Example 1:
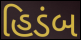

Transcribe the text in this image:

હિડંબ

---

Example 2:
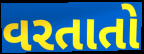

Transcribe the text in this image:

વરતાતો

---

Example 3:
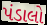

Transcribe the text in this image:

પંડાલો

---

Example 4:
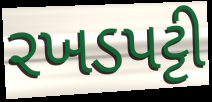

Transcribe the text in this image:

રખડપટ્ટી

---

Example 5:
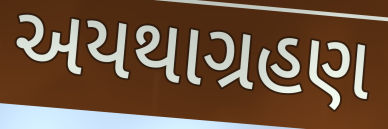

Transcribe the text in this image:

અયથાગ્રહણ